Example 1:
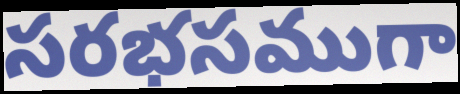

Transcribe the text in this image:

సరభసముగా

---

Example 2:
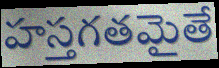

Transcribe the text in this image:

హస్తగతమైతే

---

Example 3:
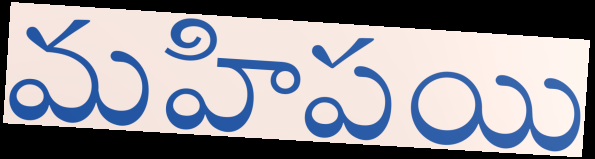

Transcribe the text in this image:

మహిపయి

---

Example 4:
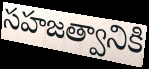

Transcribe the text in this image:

సహజత్వానికి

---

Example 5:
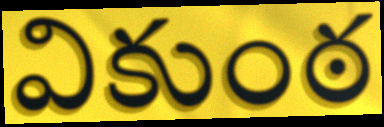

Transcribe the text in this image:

వికుంఠ